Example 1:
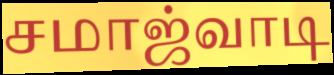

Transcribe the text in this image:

சமாஜ்வாடி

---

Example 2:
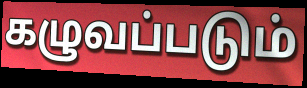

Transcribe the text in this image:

கழுவப்படும்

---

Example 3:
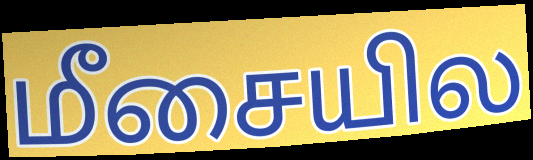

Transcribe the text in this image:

மீசையில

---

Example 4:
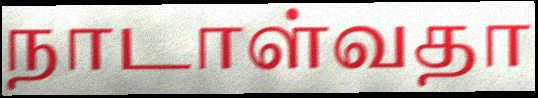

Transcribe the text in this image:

நாடாள்வதா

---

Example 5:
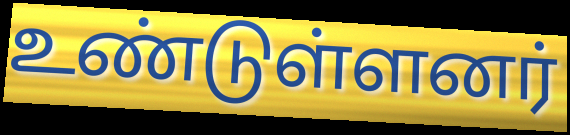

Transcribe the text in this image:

உண்டுள்ளனர்